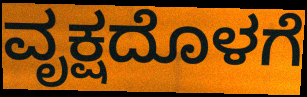
ವೃಕ್ಷದೊಳಗೆ